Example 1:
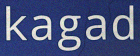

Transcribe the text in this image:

kagad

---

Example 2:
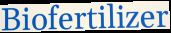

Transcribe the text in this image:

Biofertilizer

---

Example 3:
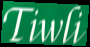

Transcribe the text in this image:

Tiwli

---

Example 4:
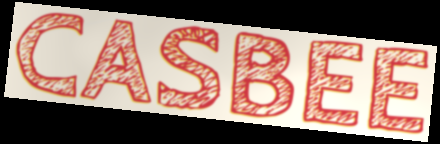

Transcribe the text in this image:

CASBEE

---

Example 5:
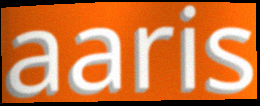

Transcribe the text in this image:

aaris